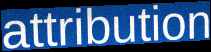
attribution